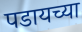
पडायच्या